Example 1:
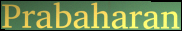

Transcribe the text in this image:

Prabaharan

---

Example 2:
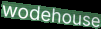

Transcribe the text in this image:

wodehouse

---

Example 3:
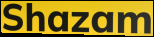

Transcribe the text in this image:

Shazam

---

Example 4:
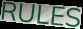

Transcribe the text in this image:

RULES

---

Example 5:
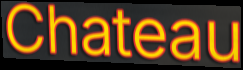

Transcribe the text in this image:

Chateau